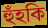
হুঁহকি